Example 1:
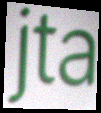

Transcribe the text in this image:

jta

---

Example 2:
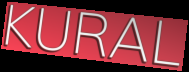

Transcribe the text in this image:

KURAL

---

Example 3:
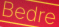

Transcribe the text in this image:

Bedre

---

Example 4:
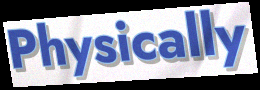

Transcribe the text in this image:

Physically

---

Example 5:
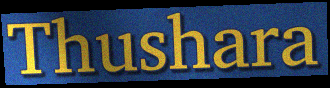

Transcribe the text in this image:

Thushara